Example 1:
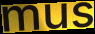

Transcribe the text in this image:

mus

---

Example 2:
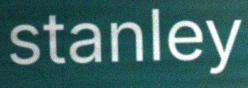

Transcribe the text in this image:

stanley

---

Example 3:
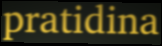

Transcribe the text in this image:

pratidina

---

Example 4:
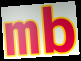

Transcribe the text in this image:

mb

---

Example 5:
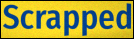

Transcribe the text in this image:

Scrapped